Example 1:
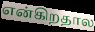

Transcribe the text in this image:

என்கிறதால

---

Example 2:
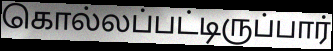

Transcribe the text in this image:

கொல்லப்பட்டிருப்பார்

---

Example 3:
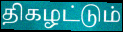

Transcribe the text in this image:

திகழட்டும்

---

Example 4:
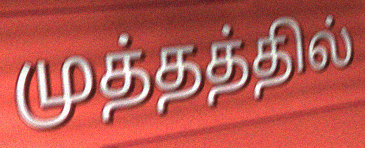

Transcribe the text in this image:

முத்தத்தில்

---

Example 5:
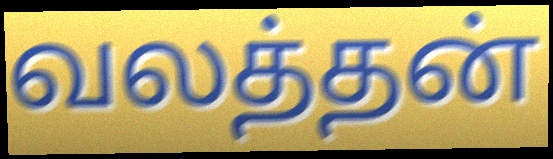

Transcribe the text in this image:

வலத்தன்